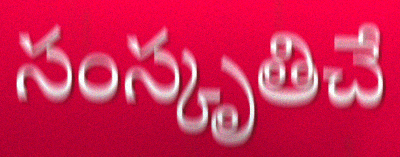
సంస్కృతిచే